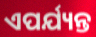
ଏପର୍ଯ୍ୟନ୍ତ